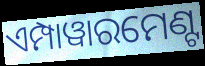
ଏମ୍ପାୱାରମେଣ୍ଟ